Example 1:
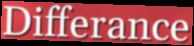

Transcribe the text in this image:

Differance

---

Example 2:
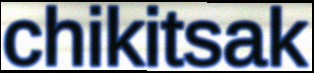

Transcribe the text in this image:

chikitsak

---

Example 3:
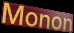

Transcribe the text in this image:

Monon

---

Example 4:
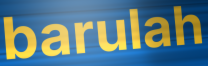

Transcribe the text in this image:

barulah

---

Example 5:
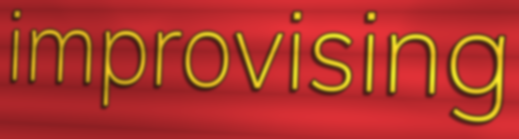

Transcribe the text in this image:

improvising